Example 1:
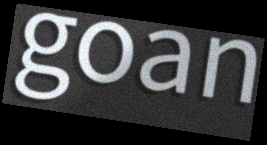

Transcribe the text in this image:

goan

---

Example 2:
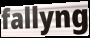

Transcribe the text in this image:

fallyng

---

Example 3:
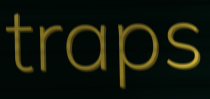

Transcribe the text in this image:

traps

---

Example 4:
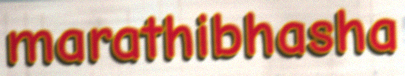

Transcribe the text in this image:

marathibhasha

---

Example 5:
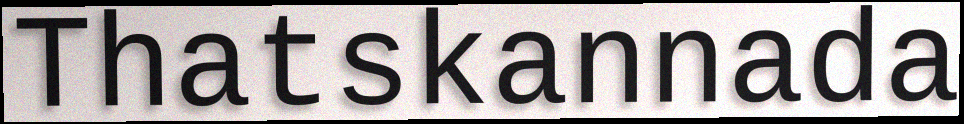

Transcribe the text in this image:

Thatskannada